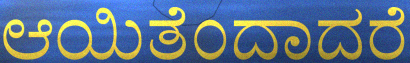
ಆಯಿತೆಂದಾದರೆ